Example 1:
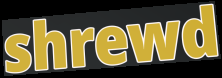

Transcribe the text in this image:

shrewd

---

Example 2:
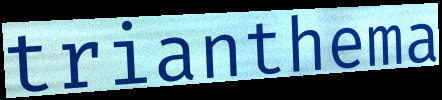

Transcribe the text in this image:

trianthema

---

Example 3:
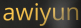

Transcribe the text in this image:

awiyun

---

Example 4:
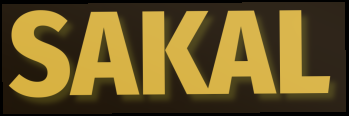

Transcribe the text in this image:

SAKAL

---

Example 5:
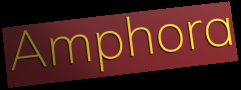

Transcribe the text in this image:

Amphora